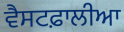
ਵੈਸਟਫ਼ਾਲੀਆ